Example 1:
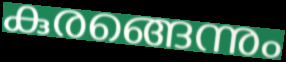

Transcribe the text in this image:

കുരങ്ങെന്നും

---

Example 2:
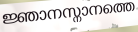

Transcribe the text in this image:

ജ്ഞാനസ്നാനത്തെ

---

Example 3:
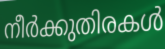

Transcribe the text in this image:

നീർക്കുതിരകൾ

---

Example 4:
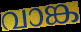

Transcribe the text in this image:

വാങ്ക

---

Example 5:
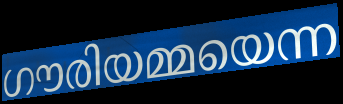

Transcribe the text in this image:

ഗൗരിയമ്മയെന്ന